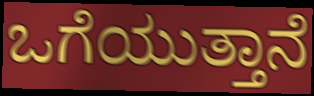
ಒಗೆಯುತ್ತಾನೆ